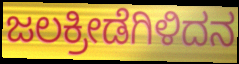
ಜಲಕ್ರೀಡೆಗಿಳಿದನ